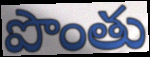
పొంతు